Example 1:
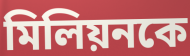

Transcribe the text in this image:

মিলিয়নকে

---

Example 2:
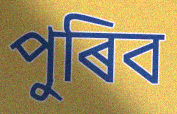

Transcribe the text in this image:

পুৰিব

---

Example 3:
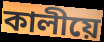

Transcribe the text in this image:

কালীয়ে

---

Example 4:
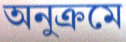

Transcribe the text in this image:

অনুক্ৰমে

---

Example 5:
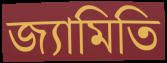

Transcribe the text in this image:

জ্যামিতি